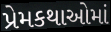
પ્રેમકથાઓમાં